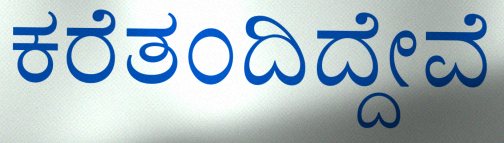
ಕರೆತಂದಿದ್ದೇವೆ